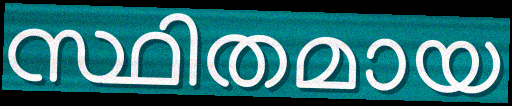
സ്ഥിതമായ